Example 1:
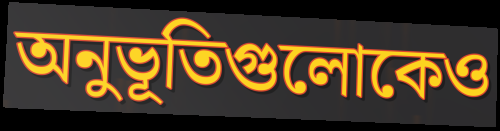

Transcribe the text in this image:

অনুভূতিগুলোকেও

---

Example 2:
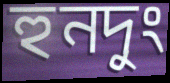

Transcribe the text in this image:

হুনদুং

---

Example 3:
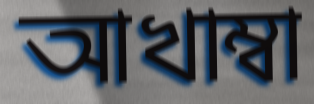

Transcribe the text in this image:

আখাম্বা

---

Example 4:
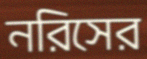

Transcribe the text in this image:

নরিসের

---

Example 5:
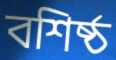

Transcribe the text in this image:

বশিষ্ঠ